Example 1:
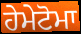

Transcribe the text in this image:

ਹੇਮੇਟੋਮਾ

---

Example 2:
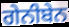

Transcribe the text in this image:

ਗੇਨੀਬੇਨ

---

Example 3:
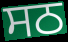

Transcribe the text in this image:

ਸਠ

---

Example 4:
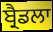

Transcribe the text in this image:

ਬ੍ਰੈਡਲਾ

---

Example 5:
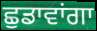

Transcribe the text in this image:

ਛੁਡਾਵਾਂਗਾ